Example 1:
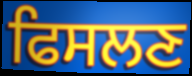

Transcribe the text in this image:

ਫਿਸਲਣ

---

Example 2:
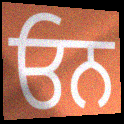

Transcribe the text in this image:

ਓਨ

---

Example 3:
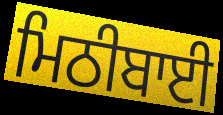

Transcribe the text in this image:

ਮਿਠੀਬਾਈ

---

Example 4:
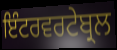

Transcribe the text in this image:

ਇੰਟਰਵਰਟੇਬ੍ਰਲ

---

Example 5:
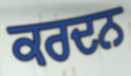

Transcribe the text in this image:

ਕਰਦਨ